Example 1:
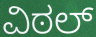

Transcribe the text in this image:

ವಿಠಲ್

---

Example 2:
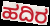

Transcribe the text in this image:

ಹದಿರ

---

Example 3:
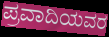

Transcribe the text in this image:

ಪ್ರವಾದಿಯವರ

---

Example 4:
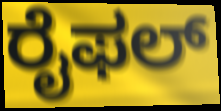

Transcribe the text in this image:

ರೈಫಲ್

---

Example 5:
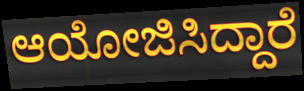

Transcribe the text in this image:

ಆಯೋಜಿಸಿದ್ದಾರೆ